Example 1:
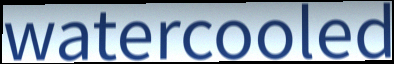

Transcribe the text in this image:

watercooled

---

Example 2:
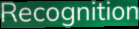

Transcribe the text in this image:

Recognition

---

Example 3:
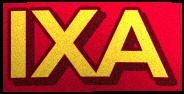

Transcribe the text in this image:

IXA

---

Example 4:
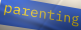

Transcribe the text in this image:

parenting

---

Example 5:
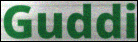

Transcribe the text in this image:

Guddi